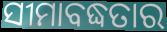
ସୀମାବଦ୍ଧତାର